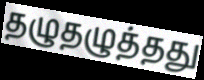
தழுதழுத்தது